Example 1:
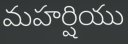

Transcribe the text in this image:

మహర్షియు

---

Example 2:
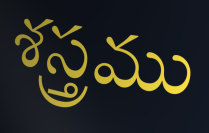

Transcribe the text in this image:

శస్త్రము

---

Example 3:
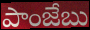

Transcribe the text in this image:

పాంజేబు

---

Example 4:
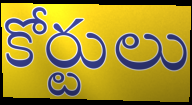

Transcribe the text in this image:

కోర్టులు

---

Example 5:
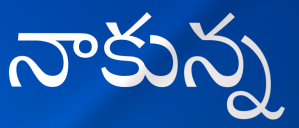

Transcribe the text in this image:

నాకున్న